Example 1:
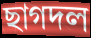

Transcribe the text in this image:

ছাগদল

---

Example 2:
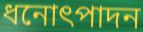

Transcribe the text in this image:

ধনোৎপাদন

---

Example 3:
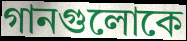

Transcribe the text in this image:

গানগুলোকে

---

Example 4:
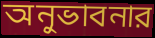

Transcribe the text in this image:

অনুভাবনার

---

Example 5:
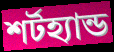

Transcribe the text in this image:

শর্টহ্যান্ড